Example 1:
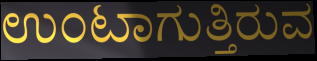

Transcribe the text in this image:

ಉಂಟಾಗುತ್ತಿರುವ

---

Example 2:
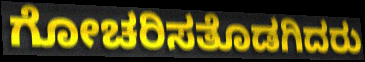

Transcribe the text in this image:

ಗೋಚರಿಸತೊಡಗಿದರು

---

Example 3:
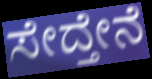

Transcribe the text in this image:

ಸೇದ್ತೇನೆ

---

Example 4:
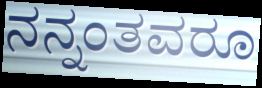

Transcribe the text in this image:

ನನ್ನಂತವರೂ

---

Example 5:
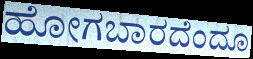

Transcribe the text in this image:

ಹೋಗಬಾರದೆಂದೂ